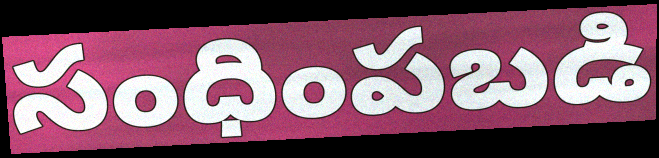
సంధింపబడి